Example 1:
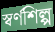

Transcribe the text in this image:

স্বর্ণশিল্প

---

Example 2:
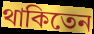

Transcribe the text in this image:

থাকিতেন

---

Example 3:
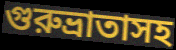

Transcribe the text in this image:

গুরুভ্রাতাসহ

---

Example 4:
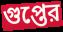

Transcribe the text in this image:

গুপ্তের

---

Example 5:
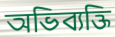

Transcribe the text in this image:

অভিব্যক্তি